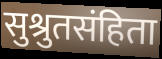
सुश्रुतसंहिता